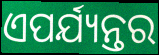
ଏପର୍ଯ୍ୟନ୍ତର